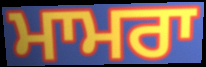
ਮਾਮਰਾ